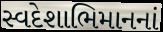
સ્વદેશાભિમાનનાં